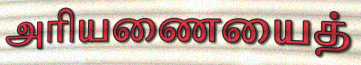
அரியணையைத்